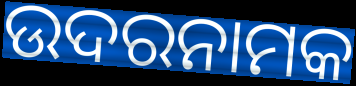
ଉଦରନାମକ